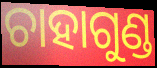
ଚାହାଗୁଣ୍ଡ